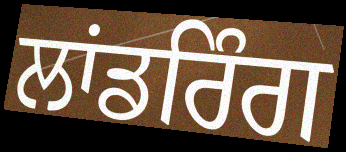
ਲਾਂਡਰਿੰਗ